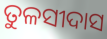
ତୁଳସୀଦାସ